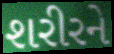
શરીરને